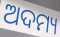
ଅଦମ୍ୟ